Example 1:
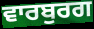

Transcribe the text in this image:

ਵਾਰਬੁਰਗ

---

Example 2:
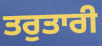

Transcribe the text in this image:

ਤਰੁਤਾਰੀ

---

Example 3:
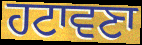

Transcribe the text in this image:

ਹਟਾਵਣਾ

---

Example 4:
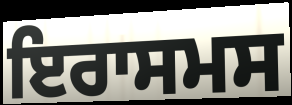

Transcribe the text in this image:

ਇਰਾਸਮਸ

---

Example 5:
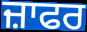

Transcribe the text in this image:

ਜ਼ਾਫਰ